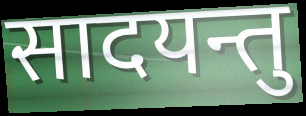
सादयन्तु